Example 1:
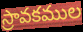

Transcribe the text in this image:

స్రావకముల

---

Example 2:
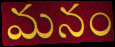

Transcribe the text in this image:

మనం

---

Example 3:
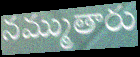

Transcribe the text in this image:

నమ్ముతారు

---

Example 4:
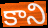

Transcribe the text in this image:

కాని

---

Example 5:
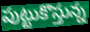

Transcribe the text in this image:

పుట్టుకొస్తున్న